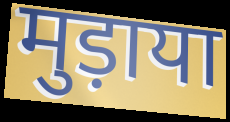
मुड़ाया